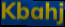
Kbahj